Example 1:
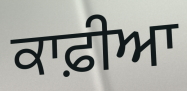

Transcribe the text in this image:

ਕਾਫ਼ੀਆ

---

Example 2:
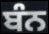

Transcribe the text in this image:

ਬੰਨ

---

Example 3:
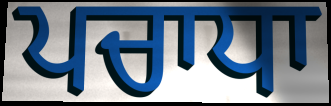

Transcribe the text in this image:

ਪਚਾਧਾ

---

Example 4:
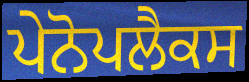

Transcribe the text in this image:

ਪੇਨੋਪਲੈਕਸ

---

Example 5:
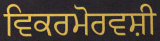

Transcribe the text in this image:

ਵਿਕਰਮੋਰਵਸ਼ੀ